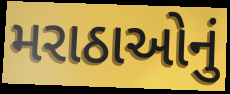
મરાઠાઓનું